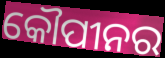
କୌପୀନର